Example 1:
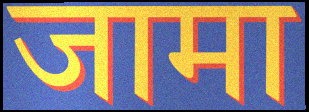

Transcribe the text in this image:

जामा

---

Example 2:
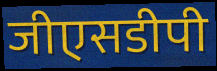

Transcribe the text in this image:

जीएसडीपी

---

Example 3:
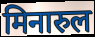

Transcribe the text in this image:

मिनारुल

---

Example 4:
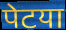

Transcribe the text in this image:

पेटया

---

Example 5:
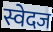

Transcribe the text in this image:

स्वेदज